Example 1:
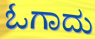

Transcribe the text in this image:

ಓಗಾದು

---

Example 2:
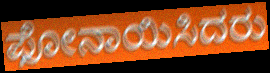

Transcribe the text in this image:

ಫೋನಾಯಿಸಿದರು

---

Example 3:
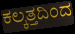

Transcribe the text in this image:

ಕಲ್ಕತ್ತದಿಂದ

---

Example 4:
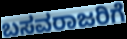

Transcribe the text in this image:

ಬಸವರಾಜರಿಗೆ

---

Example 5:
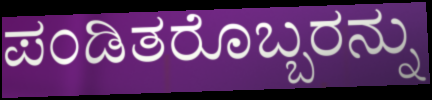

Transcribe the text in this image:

ಪಂಡಿತರೊಬ್ಬರನ್ನು